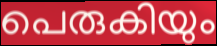
പെരുകിയും